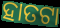
ହାତଟା